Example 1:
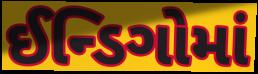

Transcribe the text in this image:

ઈન્ડિગોમાં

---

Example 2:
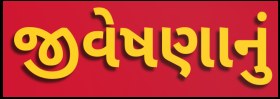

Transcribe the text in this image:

જીવેષણાનું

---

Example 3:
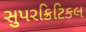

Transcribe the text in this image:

સુપરક્રિટિકલ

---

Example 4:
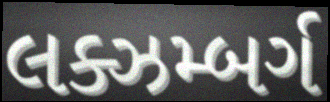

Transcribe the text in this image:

લક્ઝમ્બર્ગ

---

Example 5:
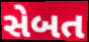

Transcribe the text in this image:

સેબત